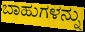
ಬಾಹುಗಳನ್ನು